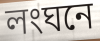
লংঘনে